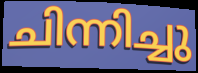
ചിന്നിച്ചു